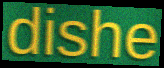
dishe